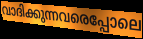
വാദിക്കുന്നവരെപ്പോലെ